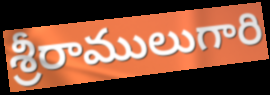
శ్రీరాములుగారి